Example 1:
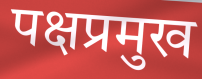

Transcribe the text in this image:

पक्षप्रमुख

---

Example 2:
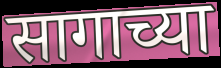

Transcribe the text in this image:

सागाच्या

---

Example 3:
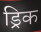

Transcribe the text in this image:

ड्रिक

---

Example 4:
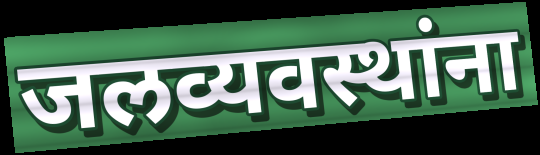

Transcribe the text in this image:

जलव्यवस्थांना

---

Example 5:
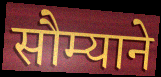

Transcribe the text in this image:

सौम्याने